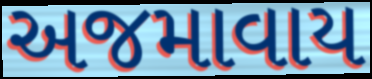
અજમાવાય